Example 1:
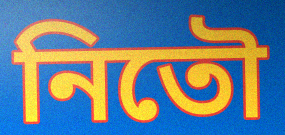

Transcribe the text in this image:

নিতৌ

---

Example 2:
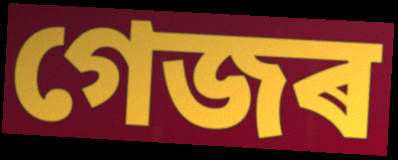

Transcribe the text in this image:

গেজৰ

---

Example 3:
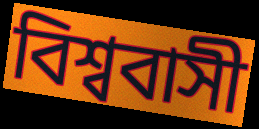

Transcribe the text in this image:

বিশ্ববাসী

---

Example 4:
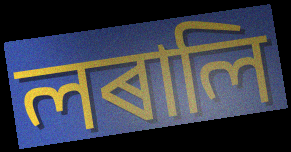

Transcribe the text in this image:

লৰালি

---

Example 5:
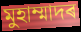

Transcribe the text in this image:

মুহাম্মাদৰ